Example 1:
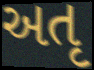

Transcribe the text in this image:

અતૃ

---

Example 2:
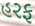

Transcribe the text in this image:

હરફ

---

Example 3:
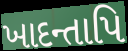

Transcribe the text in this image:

ખાદન્તાપિ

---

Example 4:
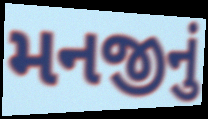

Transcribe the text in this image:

મનજીનું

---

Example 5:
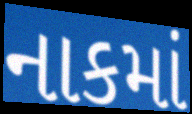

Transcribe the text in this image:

નાકમાં